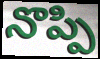
నొప్పి